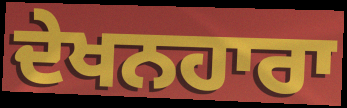
ਦੇਖਨਹਾਰਾ